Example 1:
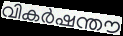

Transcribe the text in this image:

വികർഷന്തൗ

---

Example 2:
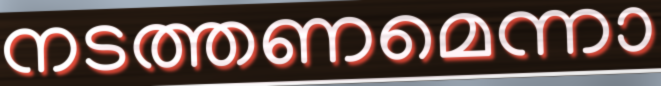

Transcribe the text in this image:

നടത്തണമെന്നാ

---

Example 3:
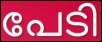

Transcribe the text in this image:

പേടി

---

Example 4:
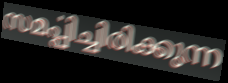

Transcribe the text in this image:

സമൎപ്പിച്ചിരിക്കുന്ന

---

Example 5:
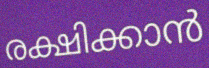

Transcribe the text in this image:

രക്ഷിക്കാൻ